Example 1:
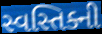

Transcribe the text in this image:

સ્વસ્તિક્ની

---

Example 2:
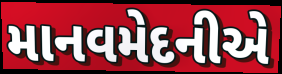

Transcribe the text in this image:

માનવમેદનીએ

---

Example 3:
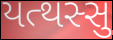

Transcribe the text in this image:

યત્થસ્સુ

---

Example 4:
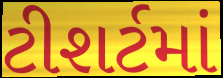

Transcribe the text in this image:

ટીશર્ટમાં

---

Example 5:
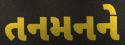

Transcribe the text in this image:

તનમનને